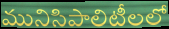
మునిసిపాలిటీలలో